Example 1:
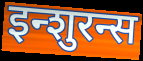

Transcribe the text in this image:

इन्शुरन्स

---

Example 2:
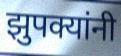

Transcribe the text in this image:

झुपक्यांनी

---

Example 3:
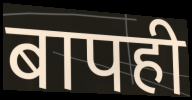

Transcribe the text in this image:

बापही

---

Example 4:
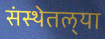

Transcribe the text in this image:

संस्थेतल्या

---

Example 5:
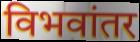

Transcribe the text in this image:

विभवांतर